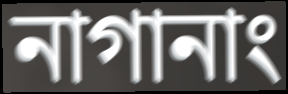
নাগানাং